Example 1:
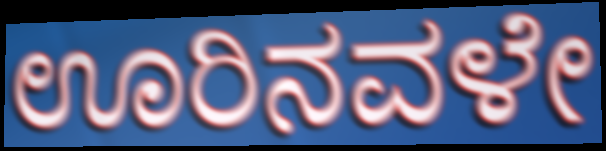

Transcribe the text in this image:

ಊರಿನವಳೇ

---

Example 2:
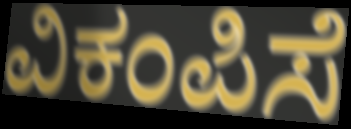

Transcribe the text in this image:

ವಿಕಂಪಿಸೆ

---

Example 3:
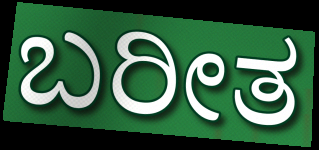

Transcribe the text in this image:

ಬರೀತ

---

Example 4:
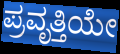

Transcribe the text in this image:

ಪ್ರವೃತ್ತಿಯೇ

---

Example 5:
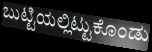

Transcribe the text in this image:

ಬುಟ್ಟಿಯಲ್ಲಿಟ್ಟುಕೊಂಡು